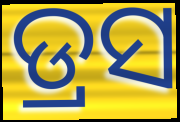
ଡ୍ରସ